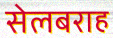
सेलबराह